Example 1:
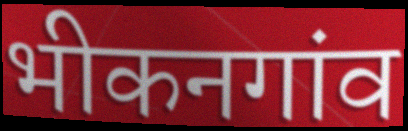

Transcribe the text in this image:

भीकनगांव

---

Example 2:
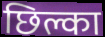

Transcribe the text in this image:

छिल्का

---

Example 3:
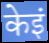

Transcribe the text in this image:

केइं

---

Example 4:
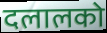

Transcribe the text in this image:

दलालको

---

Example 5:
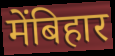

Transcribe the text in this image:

मेंबिहार